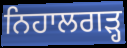
ਨਿਹਾਲਗੜ੍ਹ